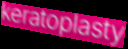
keratoplasty